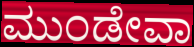
ಮುಂಡೇವಾ